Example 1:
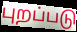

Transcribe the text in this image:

புறப்படு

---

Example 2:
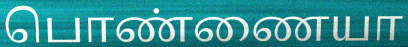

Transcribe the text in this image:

பொண்ணையா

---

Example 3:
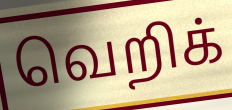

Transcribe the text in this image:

வெறிக்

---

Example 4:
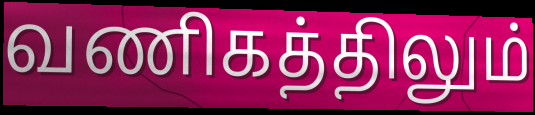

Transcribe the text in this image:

வணிகத்திலும்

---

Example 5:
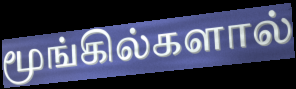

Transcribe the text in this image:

மூங்கில்களால்